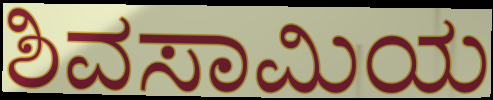
ಶಿವಸಾಮಿಯ